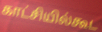
காட்சியில்கூட